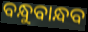
ବନ୍ଧୁବାନ୍ଧବ